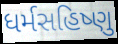
ધર્મસહિષ્ણુ